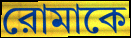
রোমাকে